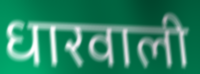
धारवाली